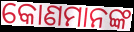
କୋଣମାନଙ୍କ